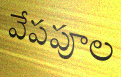
వేపపూల